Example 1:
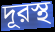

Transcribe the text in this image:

দূরস্থ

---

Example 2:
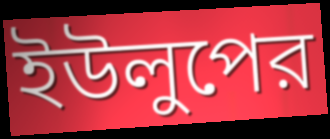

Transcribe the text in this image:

ইউলুপের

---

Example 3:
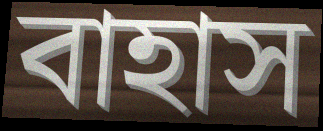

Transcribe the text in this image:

বাহাস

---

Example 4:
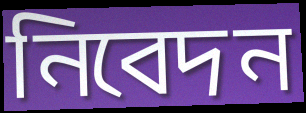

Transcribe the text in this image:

নিবেদন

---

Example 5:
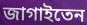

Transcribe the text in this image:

জাগাইতেন